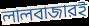
লালবাজারই